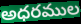
అధరముల